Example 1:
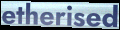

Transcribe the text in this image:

etherised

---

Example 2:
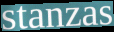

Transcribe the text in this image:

stanzas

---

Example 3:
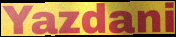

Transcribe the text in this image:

Yazdani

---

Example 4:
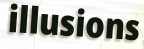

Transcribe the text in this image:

illusions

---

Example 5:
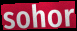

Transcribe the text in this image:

sohor